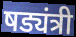
षड्यंत्री